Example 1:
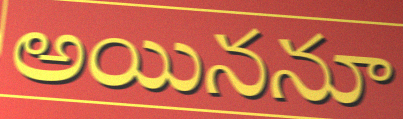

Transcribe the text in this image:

అయిననూ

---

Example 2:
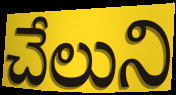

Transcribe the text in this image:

చేలుని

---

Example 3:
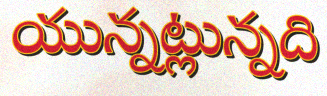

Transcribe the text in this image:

యున్నట్లున్నది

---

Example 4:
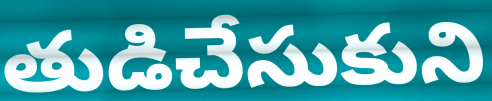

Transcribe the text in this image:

తుడిచేసుకుని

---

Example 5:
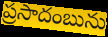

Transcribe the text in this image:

ప్రసాదంబును